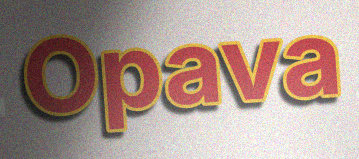
Opava